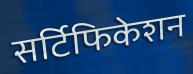
सर्टिफिकेशन